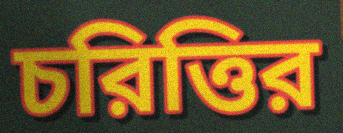
চরিত্তির